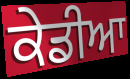
ਕੇਡੀਆ